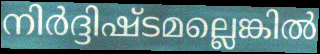
നിർദ്ദിഷ്ടമല്ലെങ്കിൽ